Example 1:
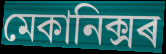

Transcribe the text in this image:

মেকানিক্সৰ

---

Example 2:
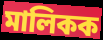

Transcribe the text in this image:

মালিকক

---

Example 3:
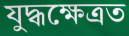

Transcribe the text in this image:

যুদ্ধক্ষেত্ৰত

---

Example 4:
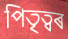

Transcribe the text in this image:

পিতৃত্বৰ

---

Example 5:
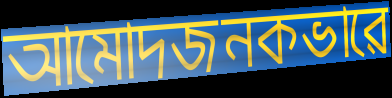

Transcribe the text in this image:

আমোদজনকভাৱে